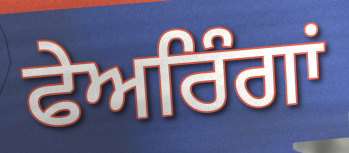
ਫੇਅਰਿੰਗਾਂ